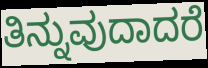
ತಿನ್ನುವುದಾದರೆ